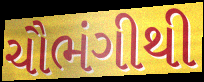
ચૌભંગીથી